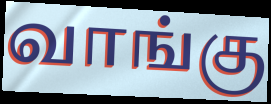
வாங்கு